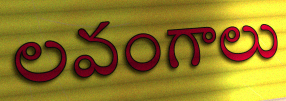
లవంగాలు